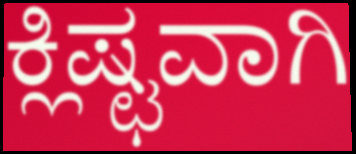
ಕ್ಲಿಷ್ಟವಾಗಿ